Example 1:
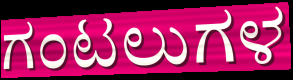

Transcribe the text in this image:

ಗಂಟಲುಗಳ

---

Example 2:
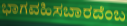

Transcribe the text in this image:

ಭಾಗವಹಿಸಬಾರದೆಂಬ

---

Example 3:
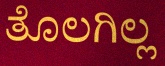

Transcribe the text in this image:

ತೊಲಗಿಲ್ಲ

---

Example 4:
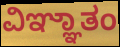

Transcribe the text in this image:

ವಿಞ್ಞಾತಂ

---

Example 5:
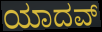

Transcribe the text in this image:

ಯಾದವ್